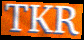
TKR